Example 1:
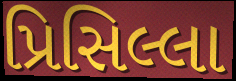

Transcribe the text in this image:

પ્રિસિલ્લા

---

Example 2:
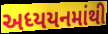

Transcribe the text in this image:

અધ્યયનમાંથી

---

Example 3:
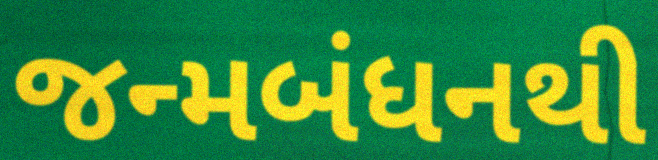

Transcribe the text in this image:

જન્મબંધનથી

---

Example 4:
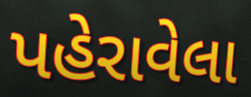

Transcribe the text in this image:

પહેરાવેલા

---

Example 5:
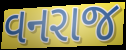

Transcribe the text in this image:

વનરાજ